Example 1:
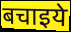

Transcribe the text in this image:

बचाइये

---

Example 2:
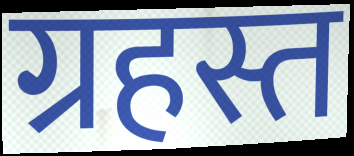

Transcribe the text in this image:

ग्रहस्त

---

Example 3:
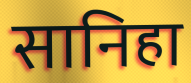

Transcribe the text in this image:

सानिहा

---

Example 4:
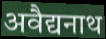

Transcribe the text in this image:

अवैद्यनाथ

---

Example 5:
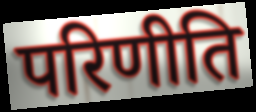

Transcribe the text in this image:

परिणीति